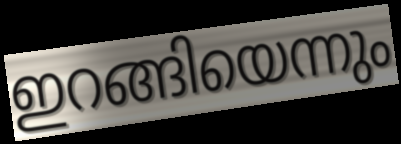
ഇറങ്ങിയെന്നും